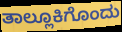
ತಾಲ್ಲೂಕಿಗೊಂದು